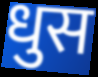
धुस